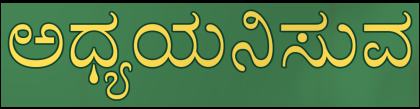
ಅಧ್ಯಯನಿಸುವ